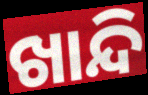
ଖାନ୍ଦି